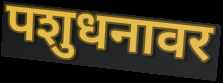
पशुधनावर